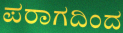
ಪರಾಗದಿಂದ